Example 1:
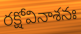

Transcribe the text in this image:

రక్షోవినాశనః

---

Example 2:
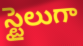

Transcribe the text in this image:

స్టైలుగా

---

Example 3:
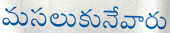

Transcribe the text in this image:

మసలుకునేవారు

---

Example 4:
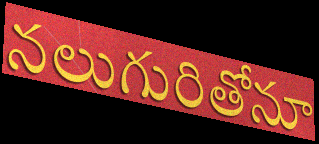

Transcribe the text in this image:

నలుగురితోనూ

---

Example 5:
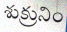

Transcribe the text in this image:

శుక్రునిం